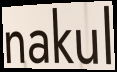
nakul